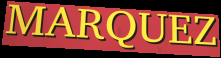
MARQUEZ